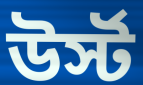
উর্স্ট